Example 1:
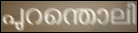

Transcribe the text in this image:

പുറന്തൊലി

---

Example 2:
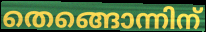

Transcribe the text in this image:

തെങ്ങൊന്നിന്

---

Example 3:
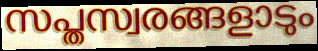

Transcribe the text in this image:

സപ്തസ്വരങ്ങളാടും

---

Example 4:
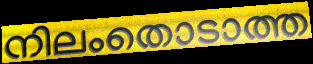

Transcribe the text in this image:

നിലംതൊടാത്ത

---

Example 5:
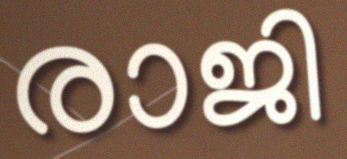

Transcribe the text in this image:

രാജി